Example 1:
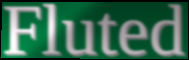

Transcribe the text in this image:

Fluted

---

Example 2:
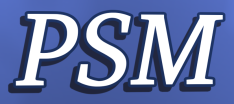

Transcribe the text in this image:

PSM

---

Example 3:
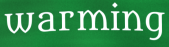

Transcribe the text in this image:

warming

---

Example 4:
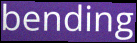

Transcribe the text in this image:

bending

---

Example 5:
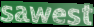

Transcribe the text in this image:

sawest